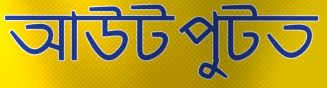
আউটপুটত